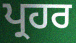
ਪ੍ਰਹਰ